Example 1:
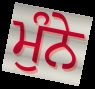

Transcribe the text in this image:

ਮੁੰਨੇ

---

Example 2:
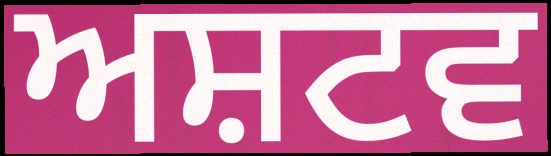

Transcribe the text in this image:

ਅਸ਼ਟਵ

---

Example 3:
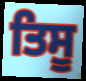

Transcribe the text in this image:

ਤਿਸੂ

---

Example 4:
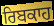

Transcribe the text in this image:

ਰਿਬਕਾਹ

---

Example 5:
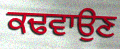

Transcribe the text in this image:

ਕਢਵਾਉਣ